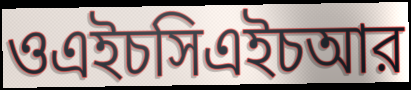
ওএইচসিএইচআর